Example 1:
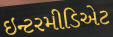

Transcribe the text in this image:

ઇન્ટરમીડિએટ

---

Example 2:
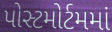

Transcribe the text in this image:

પોસ્ટમોર્ટમમાં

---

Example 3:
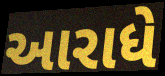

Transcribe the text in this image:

આરાધે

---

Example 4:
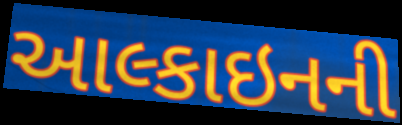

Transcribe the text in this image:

આલ્કાઇનની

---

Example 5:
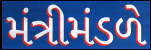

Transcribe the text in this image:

મંત્રીમંડળે